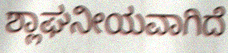
ಶ್ಲಾಘನೀಯವಾಗಿದೆ